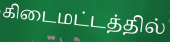
கிடைமட்டத்தில்